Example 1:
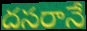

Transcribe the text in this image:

దసరానే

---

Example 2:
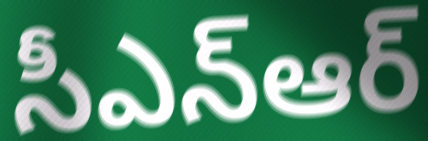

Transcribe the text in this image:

సీఎన్ఆర్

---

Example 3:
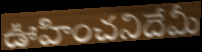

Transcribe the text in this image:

ఊహించనిదేమీ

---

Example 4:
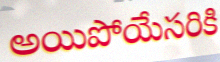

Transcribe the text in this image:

అయిపోయేసరికి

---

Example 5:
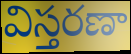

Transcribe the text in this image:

విస్తరణా